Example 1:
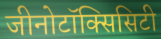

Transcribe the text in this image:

जीनोटॉक्सिसिटी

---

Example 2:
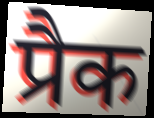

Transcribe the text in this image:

प्रैक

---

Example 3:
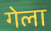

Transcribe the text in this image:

गेला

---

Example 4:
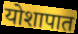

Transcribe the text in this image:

योशापात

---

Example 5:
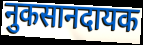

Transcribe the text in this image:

नुकसानदायक